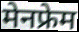
मेनफ्रेम